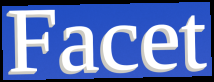
Facet